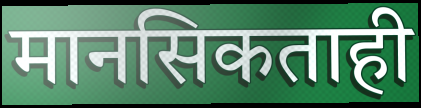
मानसिकताही